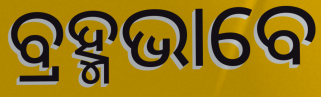
ବ୍ରହ୍ମଭାବେ